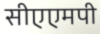
सीएएमपी